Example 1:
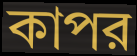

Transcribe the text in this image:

কাপর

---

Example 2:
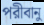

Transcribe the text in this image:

পরীবানু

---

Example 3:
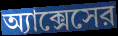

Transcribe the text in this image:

অ্যাক্সেসের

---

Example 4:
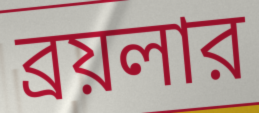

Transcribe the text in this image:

ব্রয়লার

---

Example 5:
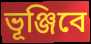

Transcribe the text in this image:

ভূঞ্জিবে